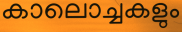
കാലൊച്ചകളും